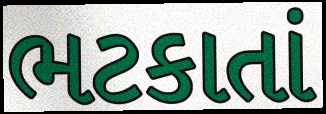
ભટકાતાં